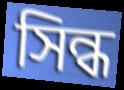
সিন্ধ